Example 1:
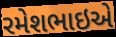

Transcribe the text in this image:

રમેશભાઇએ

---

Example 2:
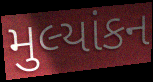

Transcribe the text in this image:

મુલ્યાંકન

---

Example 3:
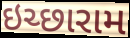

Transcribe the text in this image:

ઇચ્છારામ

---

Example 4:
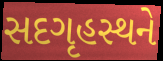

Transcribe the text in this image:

સદગૃહસ્થને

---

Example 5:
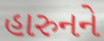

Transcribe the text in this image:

હારુનને